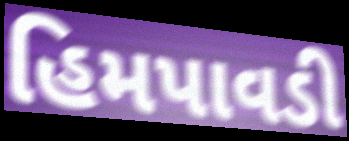
હિમપાવડી